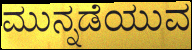
ಮುನ್ನಡೆಯುವ